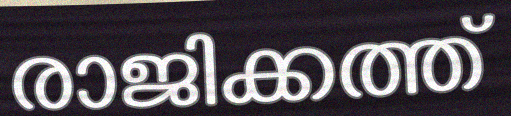
രാജിക്കത്ത്